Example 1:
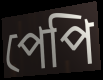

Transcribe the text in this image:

পেপি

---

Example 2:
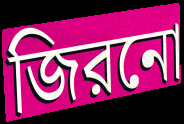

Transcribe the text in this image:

জিরনো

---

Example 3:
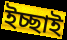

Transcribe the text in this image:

ইচ্ছাই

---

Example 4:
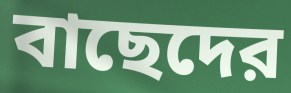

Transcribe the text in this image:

বাছেদের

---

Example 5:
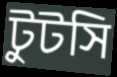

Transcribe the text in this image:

টুটসি